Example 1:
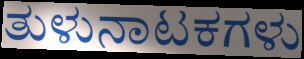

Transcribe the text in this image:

ತುಳುನಾಟಕಗಳು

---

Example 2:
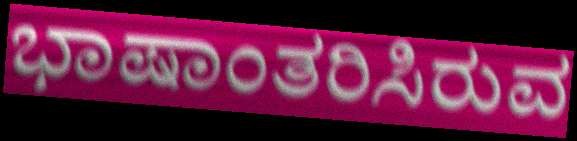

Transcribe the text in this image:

ಭಾಷಾಂತರಿಸಿರುವ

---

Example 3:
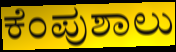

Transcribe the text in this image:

ಕೆಂಪುಶಾಲು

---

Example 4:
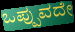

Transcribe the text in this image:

ಒಪ್ಪುವದೇ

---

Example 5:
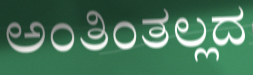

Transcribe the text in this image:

ಅಂತಿಂತಲ್ಲದ